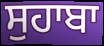
ਸੁਹਾਬਾ